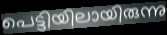
പെട്ടിയിലായിരുന്നു